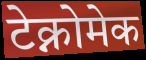
टेक्नोमेक